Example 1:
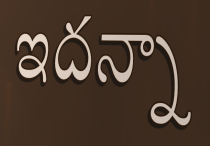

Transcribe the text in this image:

ఇదన్నా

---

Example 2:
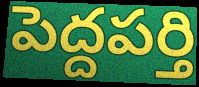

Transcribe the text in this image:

పెద్దపర్తి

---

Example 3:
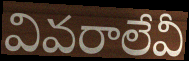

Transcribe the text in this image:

వివరాలేవీ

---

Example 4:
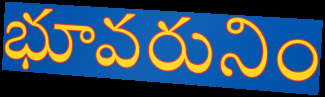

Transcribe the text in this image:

భూవరునిం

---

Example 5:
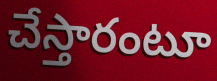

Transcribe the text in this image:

చేస్తారంటూ